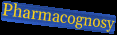
Pharmacognosy